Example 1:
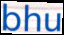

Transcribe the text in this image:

bhu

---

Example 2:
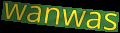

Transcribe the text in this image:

wanwas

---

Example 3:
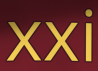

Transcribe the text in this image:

xxi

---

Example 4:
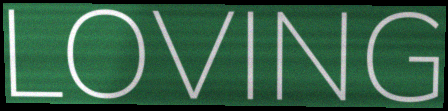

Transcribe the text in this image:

LOVING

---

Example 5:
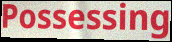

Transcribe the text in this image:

Possessing